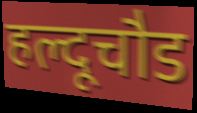
हल्दूचौड